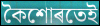
কৈশোৰতেই